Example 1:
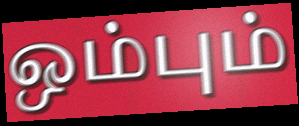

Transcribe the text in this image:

ஒம்பும்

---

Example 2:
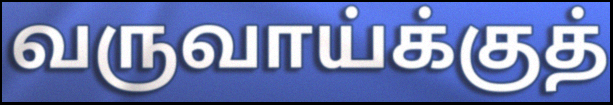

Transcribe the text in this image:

வருவாய்க்குத்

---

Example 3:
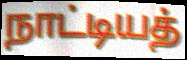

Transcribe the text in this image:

நாட்டியத்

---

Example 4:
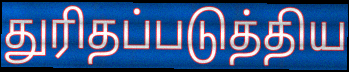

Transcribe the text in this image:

துரிதப்படுத்திய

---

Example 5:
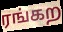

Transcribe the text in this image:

ரங்கற